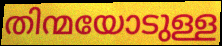
തിന്മയോടുള്ള